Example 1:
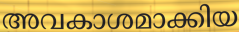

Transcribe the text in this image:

അവകാശമാക്കിയ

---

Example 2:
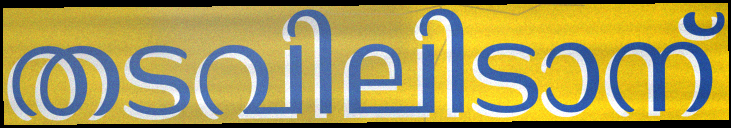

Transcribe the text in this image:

തടവിലിടാന്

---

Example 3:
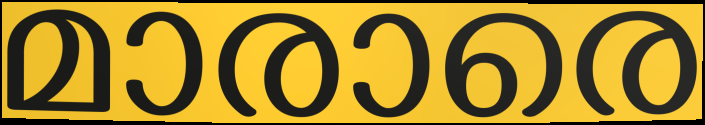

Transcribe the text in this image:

മാരാരെ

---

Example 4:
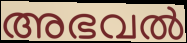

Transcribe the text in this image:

അഭവൽ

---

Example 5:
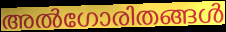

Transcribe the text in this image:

അൽഗോരിതങ്ങൾ